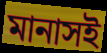
মানাসই